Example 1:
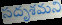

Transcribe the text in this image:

సదృశమని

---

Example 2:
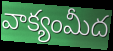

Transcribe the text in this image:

వాక్యంమీద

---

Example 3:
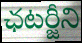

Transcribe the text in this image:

ఛటర్జీని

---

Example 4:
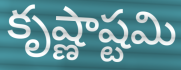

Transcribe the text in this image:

కృష్ణాష్టమి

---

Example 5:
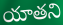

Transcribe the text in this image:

యాతని